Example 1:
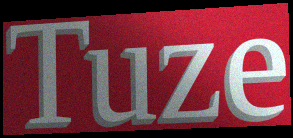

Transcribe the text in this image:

Tuze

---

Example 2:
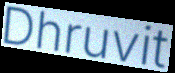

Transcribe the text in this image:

Dhruvit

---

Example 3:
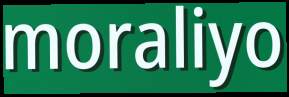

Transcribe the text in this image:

moraliyo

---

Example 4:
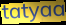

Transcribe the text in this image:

tatyaa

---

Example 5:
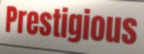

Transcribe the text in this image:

Prestigious